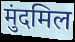
मुंदमिल